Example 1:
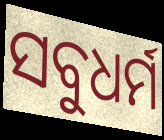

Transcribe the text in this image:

ସବୁଧର୍ମ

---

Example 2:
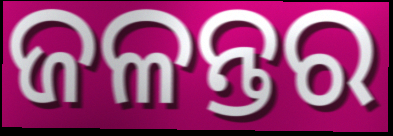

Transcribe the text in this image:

ଜଳନ୍ତର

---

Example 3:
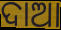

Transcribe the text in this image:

ଦାଆ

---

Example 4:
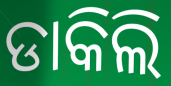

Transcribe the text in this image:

ଡାକିଲି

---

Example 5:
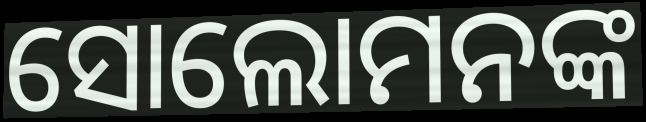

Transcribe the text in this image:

ସୋଲୋମନଙ୍କ